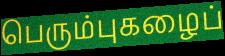
பெரும்புகழைப்